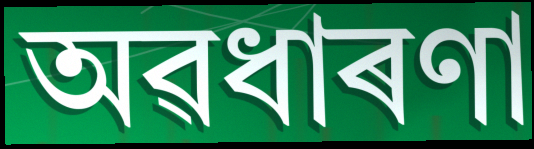
অৱধাৰণা